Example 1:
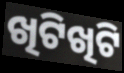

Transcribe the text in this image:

ଖିଟିଖିଟି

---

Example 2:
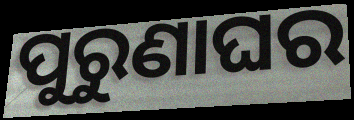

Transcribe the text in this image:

ପୁରୁଣାଘର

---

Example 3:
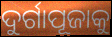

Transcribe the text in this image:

ଦୁର୍ଗାପୂଜାକୁ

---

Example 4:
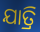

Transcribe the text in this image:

ଯାତ୍ରି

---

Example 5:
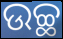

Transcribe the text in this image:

ଉଚ୍ଛ